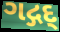
ગદ્ગદ્